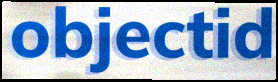
objectid